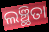
ଲଞ୍ଛିତା